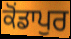
ਕੋਂਡਾਪੁਰ